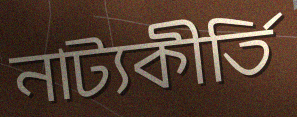
নাট্যকীর্তি